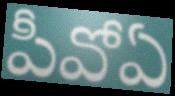
పీవోఏ